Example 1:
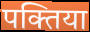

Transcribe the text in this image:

पक्तिया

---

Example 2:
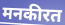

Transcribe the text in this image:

मनकीरत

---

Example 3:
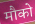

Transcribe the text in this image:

मौको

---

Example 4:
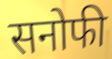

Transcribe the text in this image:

सनोफी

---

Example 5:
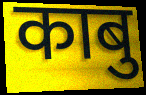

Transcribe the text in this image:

काबु